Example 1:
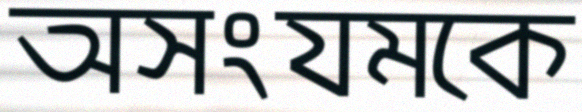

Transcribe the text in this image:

অসংযমকে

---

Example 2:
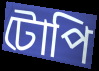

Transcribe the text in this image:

টোপি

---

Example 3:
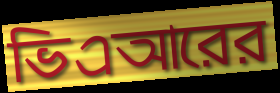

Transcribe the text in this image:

ভিএআরের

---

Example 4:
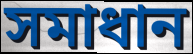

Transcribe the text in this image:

সমাধান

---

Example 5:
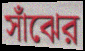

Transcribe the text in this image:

সাঁঝের